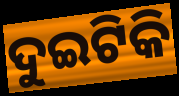
ଦୁଇଟିକି